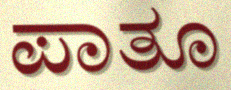
ಪಾತೂ